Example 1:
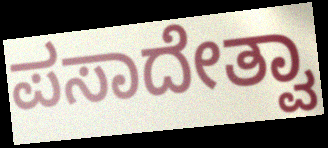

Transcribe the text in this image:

ಪಸಾದೇತ್ವಾ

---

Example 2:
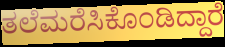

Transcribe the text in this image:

ತಲೆಮರೆಸಿಕೊಂಡಿದ್ದಾರೆ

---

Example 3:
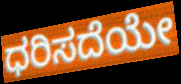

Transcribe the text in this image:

ಧರಿಸದೆಯೇ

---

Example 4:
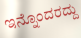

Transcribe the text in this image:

ಇನ್ನೊಂದರದ್ದು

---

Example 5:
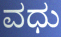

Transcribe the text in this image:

ವಧು